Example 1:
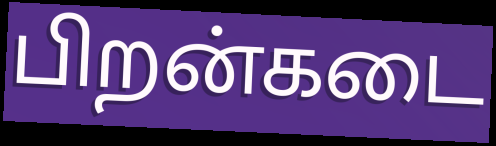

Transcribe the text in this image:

பிறன்கடை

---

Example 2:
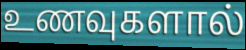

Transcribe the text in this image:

உணவுகளால்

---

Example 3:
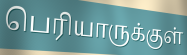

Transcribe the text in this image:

பெரியாருக்குள்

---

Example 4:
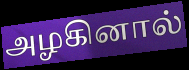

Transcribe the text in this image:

அழகினால்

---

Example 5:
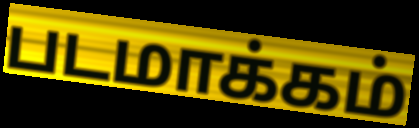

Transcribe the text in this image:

படமாக்கம்